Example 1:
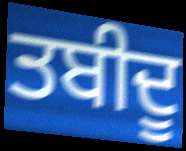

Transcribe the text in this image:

ਤਬੀਦੂ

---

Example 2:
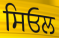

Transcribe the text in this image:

ਸਿਓਲ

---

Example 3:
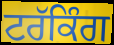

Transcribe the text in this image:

ਟਰੱਕਿੰਗ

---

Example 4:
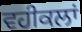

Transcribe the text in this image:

ਵਹੀਕਲਾਂ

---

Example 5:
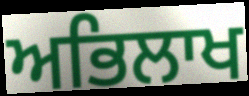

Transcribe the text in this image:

ਅਭਿਲਾਖ